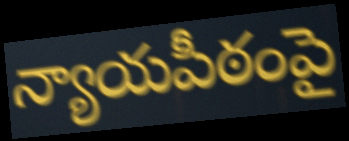
న్యాయపీఠంపై